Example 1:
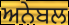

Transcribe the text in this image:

ਅਨੇਬਲ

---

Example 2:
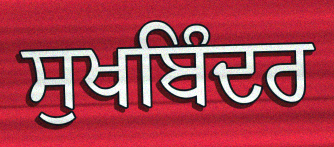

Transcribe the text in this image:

ਸੁਖਬਿੰਦਰ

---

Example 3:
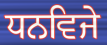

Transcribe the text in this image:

ਧਨਵਿਜੇ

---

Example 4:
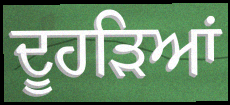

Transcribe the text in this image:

ਦੂਹੜਿਆਂ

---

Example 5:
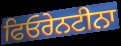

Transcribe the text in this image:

ਫਿਓਰੇਨਟੀਨਾ